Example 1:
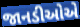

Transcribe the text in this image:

જાનડીઓએ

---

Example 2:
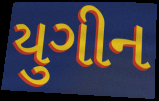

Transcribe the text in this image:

યુગીન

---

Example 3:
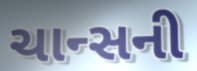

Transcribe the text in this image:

ચાન્સની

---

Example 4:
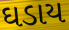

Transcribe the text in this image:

ઘડાય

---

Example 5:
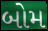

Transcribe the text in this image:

બોમ